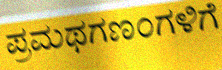
ಪ್ರಮಥಗಣಂಗಳಿಗೆ